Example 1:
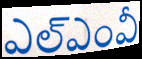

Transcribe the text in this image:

ఎల్ఎంవీ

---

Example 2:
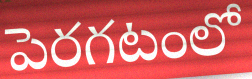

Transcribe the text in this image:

పెరగటంలో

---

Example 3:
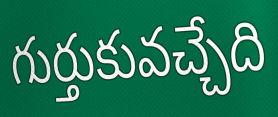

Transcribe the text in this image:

గుర్తుకువచ్చేది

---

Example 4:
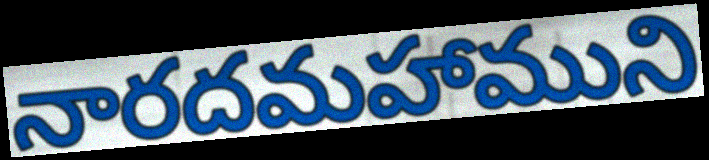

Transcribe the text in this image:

నారదమహాముని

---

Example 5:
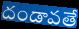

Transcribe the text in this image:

దండావతే